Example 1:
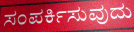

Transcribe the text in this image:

ಸಂಪರ್ಕಿಸುವುದು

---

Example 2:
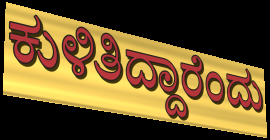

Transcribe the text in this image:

ಕುಳಿತಿದ್ದಾರೆಂದು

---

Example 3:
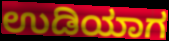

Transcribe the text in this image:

ಉಡಿಯಾಗ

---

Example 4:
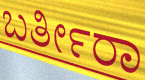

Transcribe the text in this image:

ಬರ್ತೀರಾ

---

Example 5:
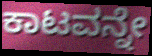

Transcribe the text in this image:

ಕಾಟವನ್ನೇ